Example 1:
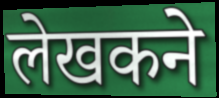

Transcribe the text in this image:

लेखकने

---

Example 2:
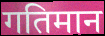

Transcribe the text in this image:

गतिमान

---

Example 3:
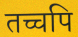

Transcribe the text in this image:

तच्चपि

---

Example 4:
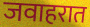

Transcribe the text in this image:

जवाहरात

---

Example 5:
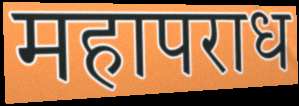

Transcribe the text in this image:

महापराध